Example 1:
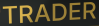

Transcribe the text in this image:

TRADER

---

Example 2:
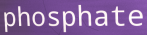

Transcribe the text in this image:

phosphate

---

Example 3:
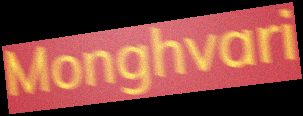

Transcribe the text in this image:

Monghvari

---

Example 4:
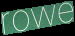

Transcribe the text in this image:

rowe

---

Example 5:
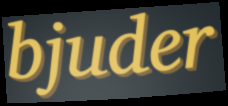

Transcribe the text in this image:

bjuder